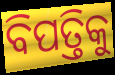
ବିପତ୍ତିକୁ